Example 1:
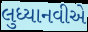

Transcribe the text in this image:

લુધ્યાનવીએ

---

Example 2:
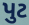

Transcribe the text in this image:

પુટ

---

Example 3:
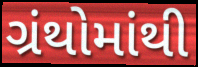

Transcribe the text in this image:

ગ્રંથોમાંથી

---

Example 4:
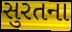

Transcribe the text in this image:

સુરતના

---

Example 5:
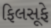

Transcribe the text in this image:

ફિલસૂફે